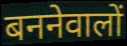
बननेवालों